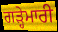
ਗੜ੍ਹੇਮਾਰੀ